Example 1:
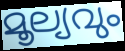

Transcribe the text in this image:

മൂല്യവും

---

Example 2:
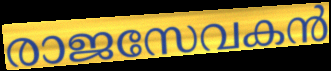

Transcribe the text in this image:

രാജസേവകൻ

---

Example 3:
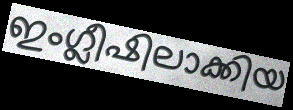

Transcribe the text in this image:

ഇംഗ്ലീഷിലാക്കിയ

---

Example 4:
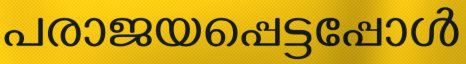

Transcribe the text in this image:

പരാജയപ്പെട്ടപ്പോൾ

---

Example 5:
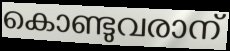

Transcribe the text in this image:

കൊണ്ടുവരാന്